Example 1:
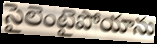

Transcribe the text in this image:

సైలెంటైపోయాను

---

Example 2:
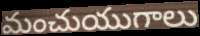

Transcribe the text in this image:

మంచుయుగాలు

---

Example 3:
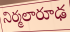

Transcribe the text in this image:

నిర్మలారూఢ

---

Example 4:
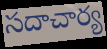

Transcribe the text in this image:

సదాచార్య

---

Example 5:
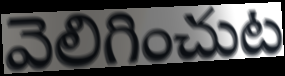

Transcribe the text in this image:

వెలిగించుట